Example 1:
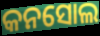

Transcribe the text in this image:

କନସୋଲ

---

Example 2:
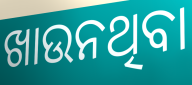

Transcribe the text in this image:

ଖାଉନଥିବା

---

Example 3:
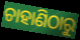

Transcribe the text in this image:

ଚାହାଣିଠାରୁ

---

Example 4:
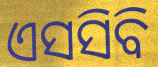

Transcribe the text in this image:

ଏସସିବି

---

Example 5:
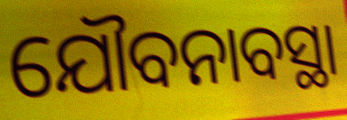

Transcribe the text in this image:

ଯୌବନାବସ୍ଥା